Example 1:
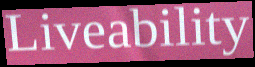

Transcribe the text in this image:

Liveability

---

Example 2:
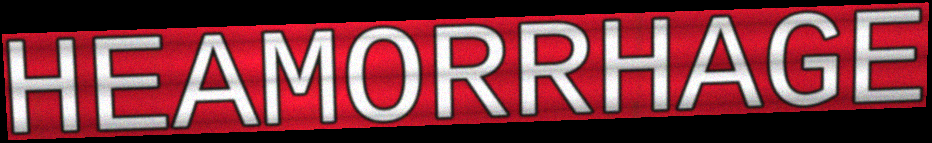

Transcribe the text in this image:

HEAMORRHAGE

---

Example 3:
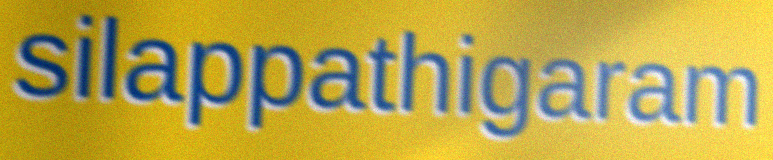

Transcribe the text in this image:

silappathigaram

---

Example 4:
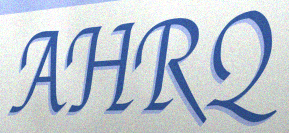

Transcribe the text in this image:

AHRQ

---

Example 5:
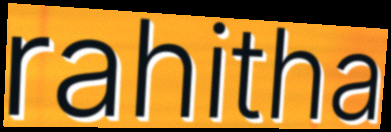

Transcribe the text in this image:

rahitha